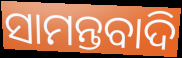
ସାମନ୍ତବାଦି